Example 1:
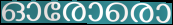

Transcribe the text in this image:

ഓരോരൊ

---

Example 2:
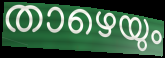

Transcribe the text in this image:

താഴെയും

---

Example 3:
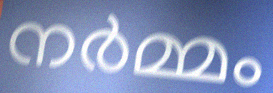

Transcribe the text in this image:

നർമ്മം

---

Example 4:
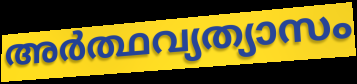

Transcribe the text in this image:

അർത്ഥവ്യത്യാസം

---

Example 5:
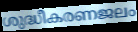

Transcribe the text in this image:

ശുദ്ധീകരണജലം